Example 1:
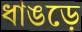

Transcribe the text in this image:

ধাঙড়ে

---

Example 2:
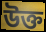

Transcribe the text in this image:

উক্ত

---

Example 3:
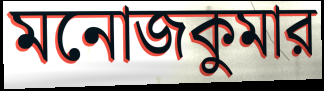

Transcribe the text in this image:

মনোজকুমার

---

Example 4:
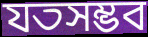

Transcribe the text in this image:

যতসম্ভব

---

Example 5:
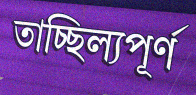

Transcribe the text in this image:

তাচ্ছিল্যপূর্ণ